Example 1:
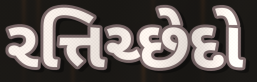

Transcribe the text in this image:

રત્તિચ્છેદો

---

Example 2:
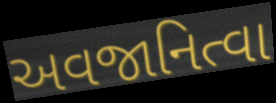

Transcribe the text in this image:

અવજાનિત્વા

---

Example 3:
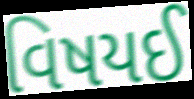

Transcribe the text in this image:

વિષયઈ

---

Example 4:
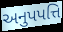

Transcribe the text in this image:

અનુપપત્તિ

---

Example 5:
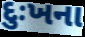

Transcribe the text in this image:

દુઃખના